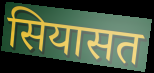
सियासत